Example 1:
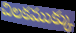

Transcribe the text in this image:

చిలకముక్కు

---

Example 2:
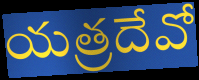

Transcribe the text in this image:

యత్రదేవో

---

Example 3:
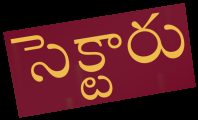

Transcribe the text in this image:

సెక్టారు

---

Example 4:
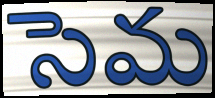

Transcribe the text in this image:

సెమ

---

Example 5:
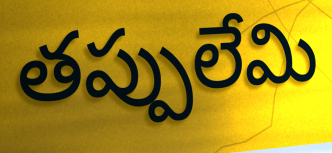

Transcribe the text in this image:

తప్పులేమి